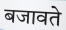
बजावते